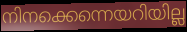
നിനക്കെന്നെയറിയില്ല